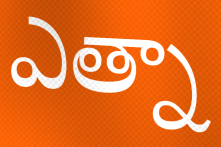
ఎత్నా